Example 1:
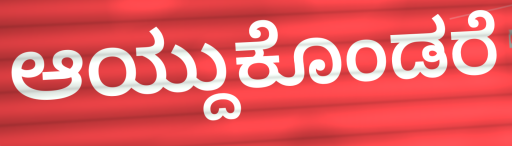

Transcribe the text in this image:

ಆಯ್ದುಕೊಂಡರೆ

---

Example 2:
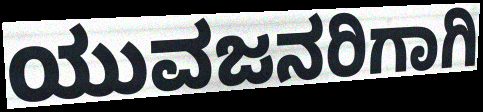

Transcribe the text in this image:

ಯುವಜನರಿಗಾಗಿ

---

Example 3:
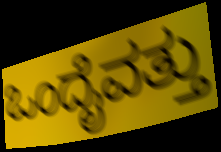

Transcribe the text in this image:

ಒಂದೈವತ್ತು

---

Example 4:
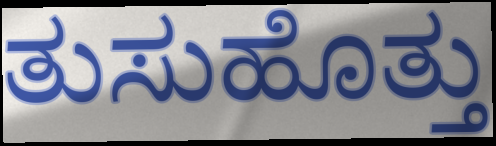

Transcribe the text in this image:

ತುಸುಹೊತ್ತು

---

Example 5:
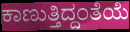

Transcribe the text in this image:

ಕಾಣುತ್ತಿದ್ದಂತೆಯೆ